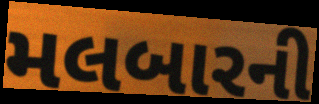
મલબારની